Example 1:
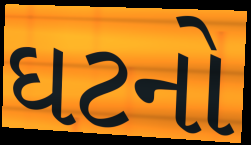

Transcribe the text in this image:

ઘટનો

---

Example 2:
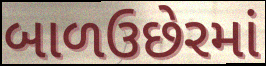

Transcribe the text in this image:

બાળઉછેરમાં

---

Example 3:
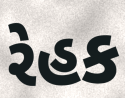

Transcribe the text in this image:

રેહક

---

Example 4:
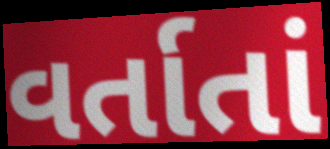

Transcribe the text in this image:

વર્તાતાં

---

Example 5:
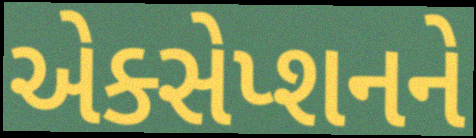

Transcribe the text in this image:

એક્સેપ્શનને